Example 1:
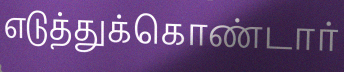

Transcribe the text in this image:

எடுத்துக்கொண்டார்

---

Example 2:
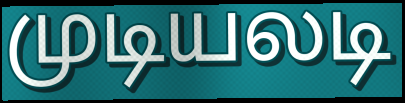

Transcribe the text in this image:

முடியலடி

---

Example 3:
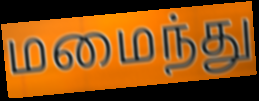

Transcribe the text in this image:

மமைந்து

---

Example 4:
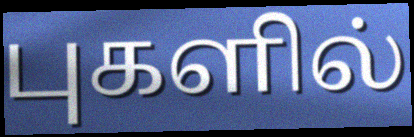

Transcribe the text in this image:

புகளில்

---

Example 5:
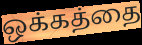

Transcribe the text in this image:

ஒக்கத்தை